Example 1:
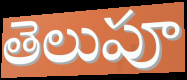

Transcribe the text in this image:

తెలుపూ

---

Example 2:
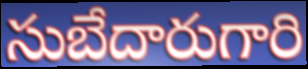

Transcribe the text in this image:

సుబేదారుగారి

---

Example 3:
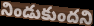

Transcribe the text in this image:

నిండుకుందని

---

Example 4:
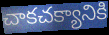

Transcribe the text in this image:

చాకచక్యానికి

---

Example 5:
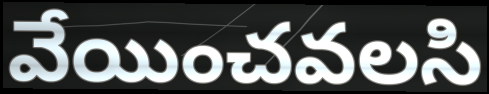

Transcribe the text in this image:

వేయించవలసి